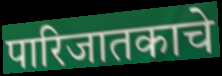
पारिजातकाचे